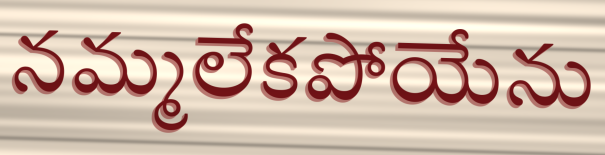
నమ్మలేకపోయేను